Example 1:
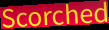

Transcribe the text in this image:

Scorched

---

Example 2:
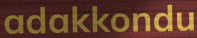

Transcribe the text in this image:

adakkondu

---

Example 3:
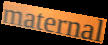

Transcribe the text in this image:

maternal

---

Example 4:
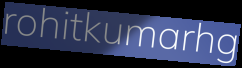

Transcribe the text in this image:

rohitkumarhg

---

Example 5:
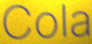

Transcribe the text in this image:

Cola